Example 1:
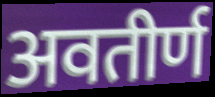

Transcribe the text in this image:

अवतीर्ण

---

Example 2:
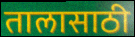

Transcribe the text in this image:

तालासाठी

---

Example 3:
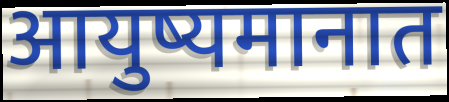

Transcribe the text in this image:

आयुष्यमानात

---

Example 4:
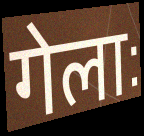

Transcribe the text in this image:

गेलाः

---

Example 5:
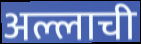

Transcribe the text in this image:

अल्लाची